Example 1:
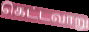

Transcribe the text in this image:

கெட்டவாறு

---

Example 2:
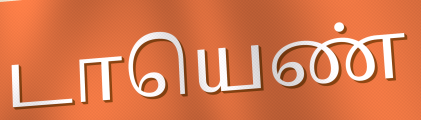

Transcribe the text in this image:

டாயெண்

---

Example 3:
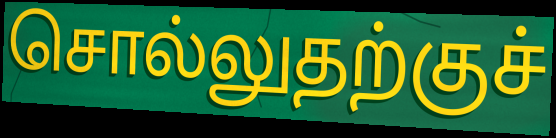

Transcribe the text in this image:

சொல்லுதற்குச்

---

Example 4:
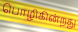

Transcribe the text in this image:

பொழிகின்றது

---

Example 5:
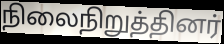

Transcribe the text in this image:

நிலைநிறுத்தினர்